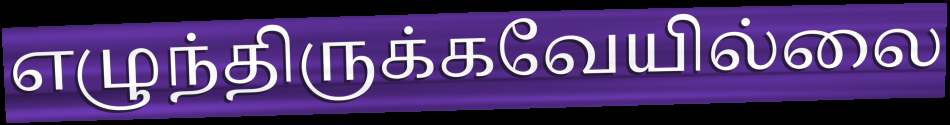
எழுந்திருக்கவேயில்லை